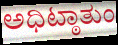
ಅಧಿಟ್ಠಾತುಂ